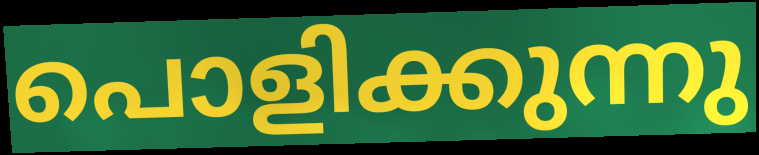
പൊളിക്കുന്നു